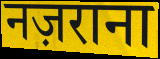
नज़राना